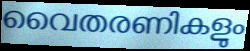
വൈതരണികളും